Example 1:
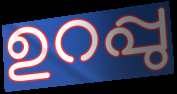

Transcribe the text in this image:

ഉറപ്പു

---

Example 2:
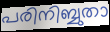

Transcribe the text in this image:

പരിനിബ്ബുതാ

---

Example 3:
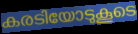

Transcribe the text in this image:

കരടിയോടുകൂടെ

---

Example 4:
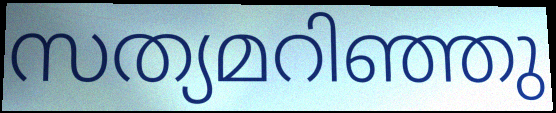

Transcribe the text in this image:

സത്യമറിഞ്ഞു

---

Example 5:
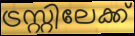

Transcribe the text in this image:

ട്രസ്റ്റിലേക്ക്